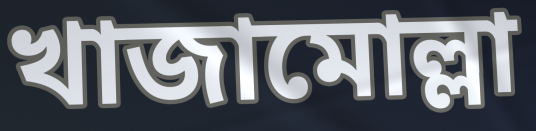
খাজামোল্লা